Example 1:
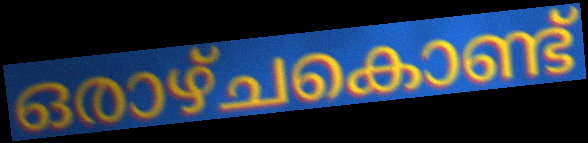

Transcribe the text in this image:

ഒരാഴ്ചകൊണ്ട്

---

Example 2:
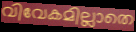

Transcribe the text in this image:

വിവേകമില്ലാതെ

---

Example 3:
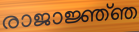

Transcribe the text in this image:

രാജാജ്ഞ്ഞ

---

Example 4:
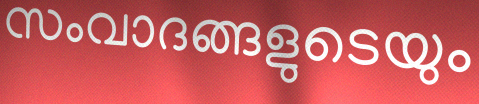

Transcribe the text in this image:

സംവാദങ്ങളുടെയും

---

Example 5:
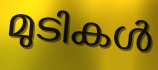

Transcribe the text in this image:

മുടികൾ